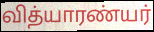
வித்யாரண்யர்